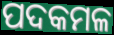
ପଦକମଳ